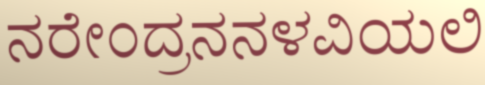
ನರೇಂದ್ರನನಳವಿಯಲಿ